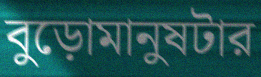
বুড়োমানুষটার